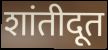
शांतीदूत